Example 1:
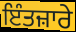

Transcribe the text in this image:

ਇੰਤਜ਼ਾਰੇ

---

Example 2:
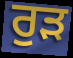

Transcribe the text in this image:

ਰੁੜ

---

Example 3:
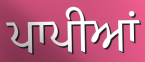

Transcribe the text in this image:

ਪਾਪੀਆਂ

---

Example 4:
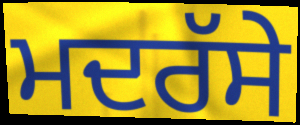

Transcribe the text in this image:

ਮਦਰੱਸੇ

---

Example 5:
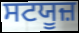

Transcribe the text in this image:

ਸਟਯੂਜ਼